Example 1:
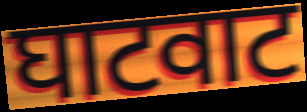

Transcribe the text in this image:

घाटवाट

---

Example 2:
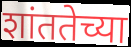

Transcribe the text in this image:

शांततेच्या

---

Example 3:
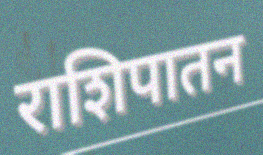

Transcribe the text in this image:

राशिपातन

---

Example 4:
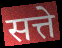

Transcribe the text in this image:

सत्ते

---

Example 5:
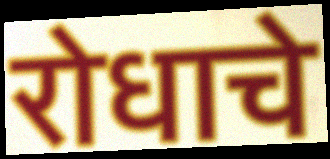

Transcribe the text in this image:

रोधाचे